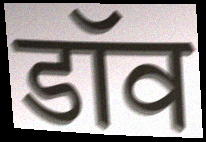
डॉव